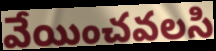
వేయించవలసి